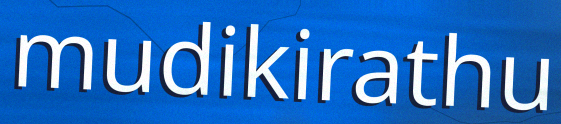
mudikirathu